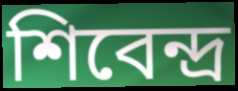
শিবেন্দ্র